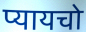
प्यायचो